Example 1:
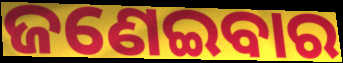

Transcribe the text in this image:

ଜଣେଇବାର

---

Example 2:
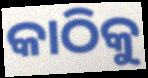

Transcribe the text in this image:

କାଠିକୁ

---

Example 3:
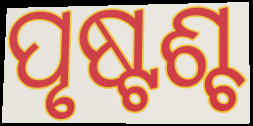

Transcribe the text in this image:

ପୃଷ୍ଟଶ୍ଚ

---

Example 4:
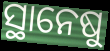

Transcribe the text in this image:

ସ୍ଥାନେଷୁ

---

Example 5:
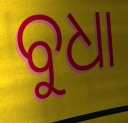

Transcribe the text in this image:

ବୁଧା